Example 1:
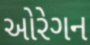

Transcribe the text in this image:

ઓરેગન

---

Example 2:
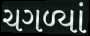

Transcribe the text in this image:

ચગળ્યાં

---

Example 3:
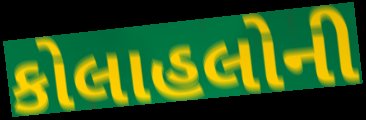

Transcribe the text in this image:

કોલાહલોની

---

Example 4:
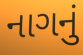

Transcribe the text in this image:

નાગનું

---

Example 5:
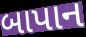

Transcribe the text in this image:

બાપાન